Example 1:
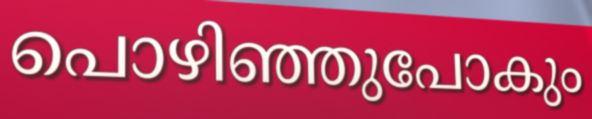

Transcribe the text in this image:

പൊഴിഞ്ഞുപോകും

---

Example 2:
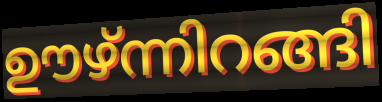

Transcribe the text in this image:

ഊഴ്ന്നിറങ്ങി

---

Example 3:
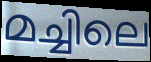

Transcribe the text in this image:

മച്ചിലെ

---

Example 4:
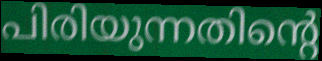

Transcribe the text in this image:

പിരിയുന്നതിന്റെ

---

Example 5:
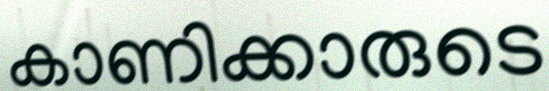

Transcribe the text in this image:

കാണിക്കാരുടെ